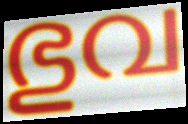
ഭുവ